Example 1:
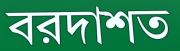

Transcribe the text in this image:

বরদাশত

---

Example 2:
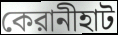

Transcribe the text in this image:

কেরানীহাট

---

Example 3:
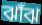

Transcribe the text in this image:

ঝাঁঝ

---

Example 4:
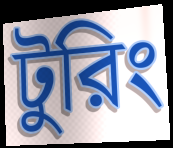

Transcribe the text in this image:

টুরিং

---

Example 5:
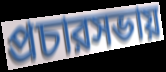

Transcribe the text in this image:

প্রচারসভায়